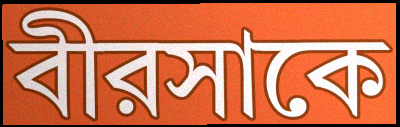
বীরসাকে